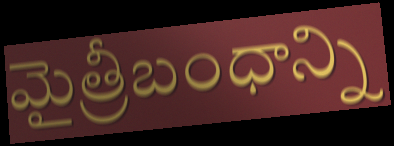
మైత్రీబంధాన్ని